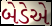
બેડેએ